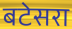
बटेसरा